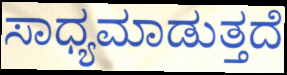
ಸಾಧ್ಯಮಾಡುತ್ತದೆ